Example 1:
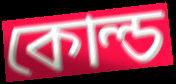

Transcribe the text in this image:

কোল্ড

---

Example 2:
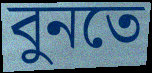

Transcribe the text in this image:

বুনতে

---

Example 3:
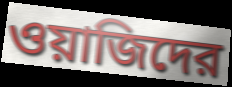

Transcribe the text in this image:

ওয়াজিদের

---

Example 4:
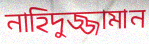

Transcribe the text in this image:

নাহিদুজ্জামান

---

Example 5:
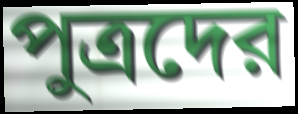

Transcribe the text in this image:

পুত্রদের